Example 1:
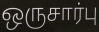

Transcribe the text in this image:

ஒருசார்பு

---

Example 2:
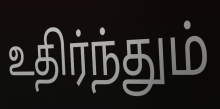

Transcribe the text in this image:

உதிர்ந்தும்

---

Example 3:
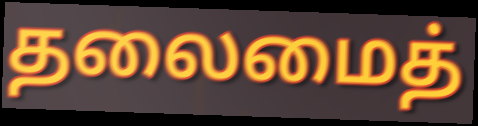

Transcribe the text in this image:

தலைமைத்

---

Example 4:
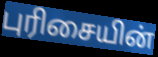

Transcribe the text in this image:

புரிசையின்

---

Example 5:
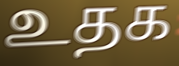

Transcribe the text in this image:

உதக